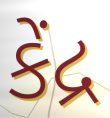
કેંદ્ર